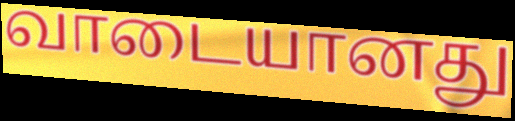
வாடையானது